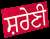
ਸ਼ਰੇਣੀ